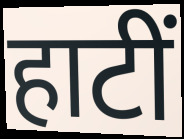
हाटीं